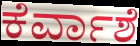
ಕೆರ್ವಾಶೆ